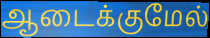
ஆடைக்குமேல்